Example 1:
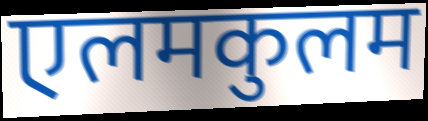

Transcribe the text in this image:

एलमकुलम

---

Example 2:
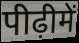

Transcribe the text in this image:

पीढ़ीमें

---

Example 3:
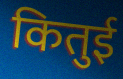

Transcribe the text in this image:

कितुई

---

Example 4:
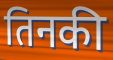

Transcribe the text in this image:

तिनकी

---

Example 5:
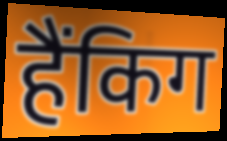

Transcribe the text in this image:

हैंकिग